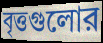
বৃত্তগুলোর